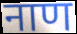
नाण